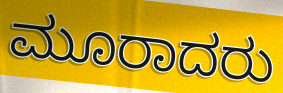
ಮೂರಾದರು